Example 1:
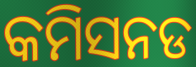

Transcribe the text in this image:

କମିସନଡ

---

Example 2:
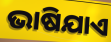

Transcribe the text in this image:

ଭାଷିଯାଏ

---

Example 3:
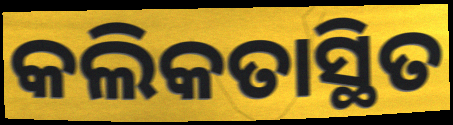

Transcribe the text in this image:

କଲିକତାସ୍ଥିତ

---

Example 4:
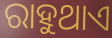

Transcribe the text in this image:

ରାହୁଥାଏ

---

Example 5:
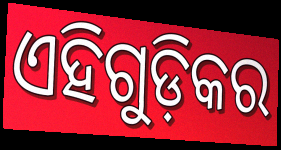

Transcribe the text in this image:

ଏହିଗୁଡ଼ିକର